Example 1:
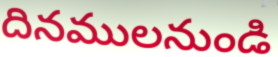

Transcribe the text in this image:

దినములనుండి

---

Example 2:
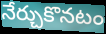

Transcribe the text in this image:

నేర్చుకొనటం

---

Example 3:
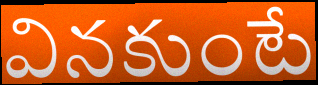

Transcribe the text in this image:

వినకుంటే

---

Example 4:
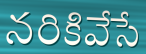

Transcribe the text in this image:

నరికివేసే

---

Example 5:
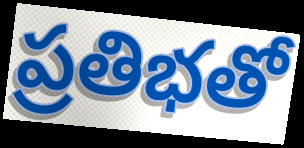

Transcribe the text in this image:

ప్రతిభతో